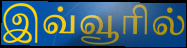
இவ்வூரில்